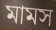
মামস